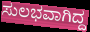
ಸುಲಭವಾಗಿದ್ದ